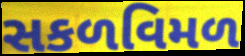
સકળવિમળ